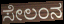
ಸೇಲಂನ